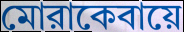
মোরাকেবায়ে